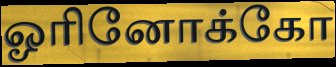
ஓரினோக்கோ